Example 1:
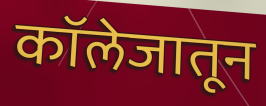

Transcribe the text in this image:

कॉलेजातून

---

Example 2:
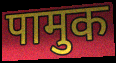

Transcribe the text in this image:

पामुक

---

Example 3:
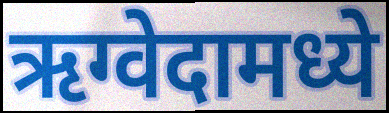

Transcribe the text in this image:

ऋग्वेदामध्ये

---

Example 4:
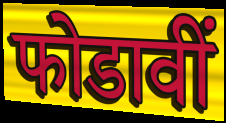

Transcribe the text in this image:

फोडावीं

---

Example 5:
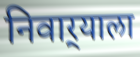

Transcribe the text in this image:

निवार्याला